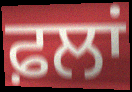
ਫ਼ਲਾਂ